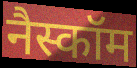
नैस्कॉम